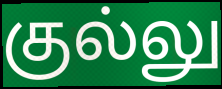
குல்லு